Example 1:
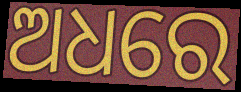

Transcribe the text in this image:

ଅଧରେ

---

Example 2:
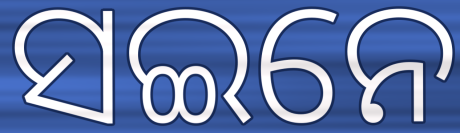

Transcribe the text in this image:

ସଇନେ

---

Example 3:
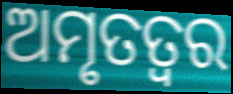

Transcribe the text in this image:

ଅମୃତତ୍ଵର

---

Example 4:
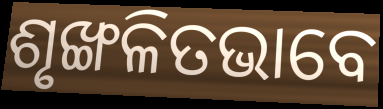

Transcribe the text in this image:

ଶୃଙ୍ଖଳିତଭାବେ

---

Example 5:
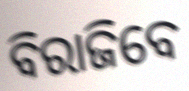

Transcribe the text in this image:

ବିରାଜିବେ